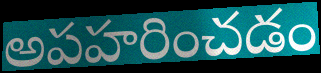
అపహరించడం